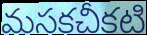
మసకచీకటి